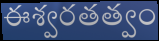
ఈశ్వరతత్వం